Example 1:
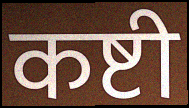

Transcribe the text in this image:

कष्टी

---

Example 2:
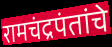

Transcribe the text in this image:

रामचंद्रपंतांचे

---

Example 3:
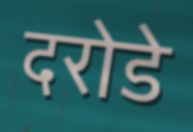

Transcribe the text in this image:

दरोडे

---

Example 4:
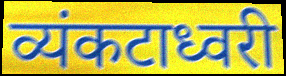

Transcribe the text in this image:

व्यंकटाध्वरी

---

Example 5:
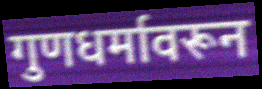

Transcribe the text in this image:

गुणधर्मावरून